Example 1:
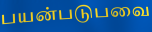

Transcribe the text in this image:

பயன்படுபவை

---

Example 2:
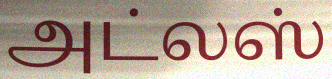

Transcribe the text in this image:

அட்லஸ்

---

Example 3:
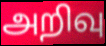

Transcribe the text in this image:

அறிவு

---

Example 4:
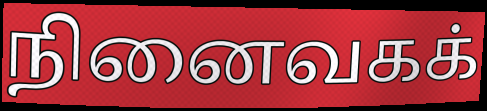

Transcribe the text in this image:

நினைவகக்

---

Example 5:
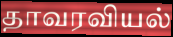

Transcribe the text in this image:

தாவரவியல்